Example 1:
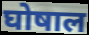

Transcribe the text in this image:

घोषाल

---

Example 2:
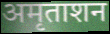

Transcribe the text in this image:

अमृताशन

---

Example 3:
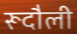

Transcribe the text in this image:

रूदौली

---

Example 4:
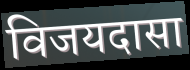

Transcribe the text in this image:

विजयदासा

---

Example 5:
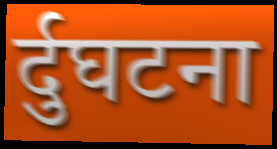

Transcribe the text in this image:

र्दुघटना